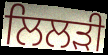
ਲਿਲੜੀ